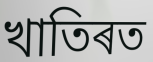
খাতিৰত